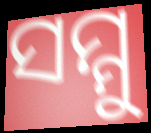
ସମ୍ମୁ